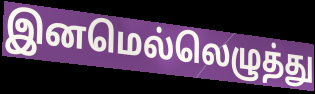
இனமெல்லெழுத்து